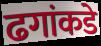
ढगांकडे